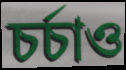
চর্চাও